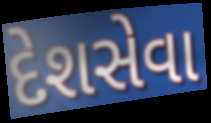
દેશસેવા